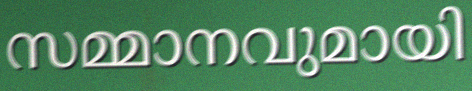
സമ്മാനവുമായി